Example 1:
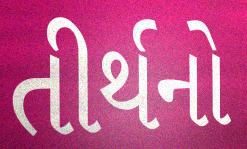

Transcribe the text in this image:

તીર્થનો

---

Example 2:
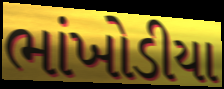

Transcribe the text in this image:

ભાંખોડીયા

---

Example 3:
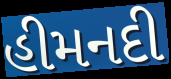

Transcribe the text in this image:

હીમનદી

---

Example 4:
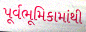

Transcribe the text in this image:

પૂર્વભૂમિકામાંથી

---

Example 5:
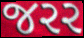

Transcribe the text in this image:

જરર